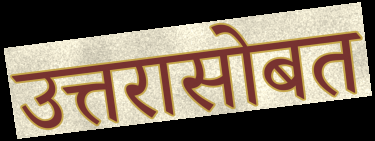
उत्तरासोबत